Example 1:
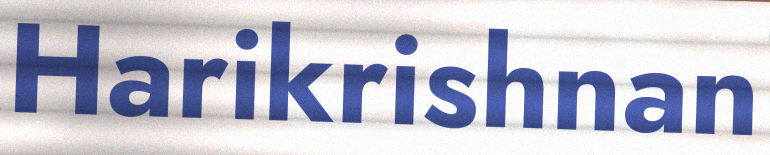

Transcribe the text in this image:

Harikrishnan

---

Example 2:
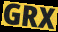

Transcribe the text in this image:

GRX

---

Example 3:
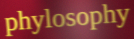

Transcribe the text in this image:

phylosophy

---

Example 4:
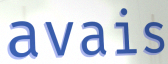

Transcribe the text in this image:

avais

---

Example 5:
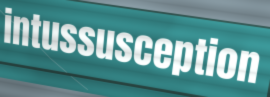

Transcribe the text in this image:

intussusception